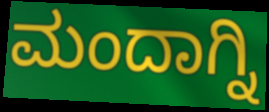
ಮಂದಾಗ್ನಿ